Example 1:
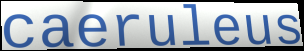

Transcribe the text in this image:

caeruleus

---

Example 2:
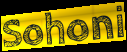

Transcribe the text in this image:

Sohoni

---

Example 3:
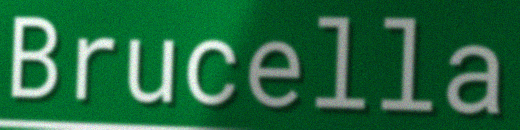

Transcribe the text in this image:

Brucella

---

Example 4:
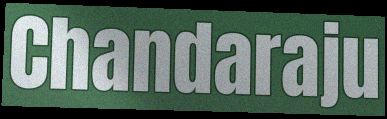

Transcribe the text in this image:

Chandaraju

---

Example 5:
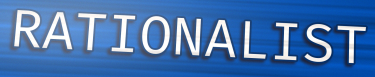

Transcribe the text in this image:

RATIONALIST